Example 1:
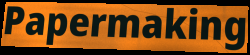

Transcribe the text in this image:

Papermaking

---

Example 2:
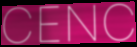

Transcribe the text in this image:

CENC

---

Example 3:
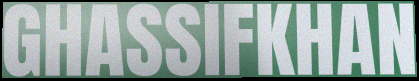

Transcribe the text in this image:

GHASSIFKHAN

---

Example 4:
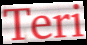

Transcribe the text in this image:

Teri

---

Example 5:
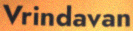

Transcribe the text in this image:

Vrindavan